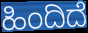
ಹಿಂದಿದೆ